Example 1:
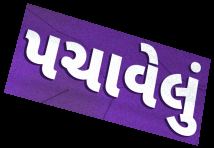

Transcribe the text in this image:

પચાવેલું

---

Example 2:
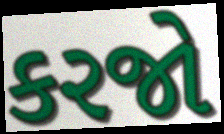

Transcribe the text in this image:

કરજો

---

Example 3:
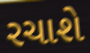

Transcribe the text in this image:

રચાશે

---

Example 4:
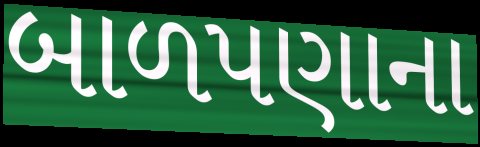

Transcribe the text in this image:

બાળપણાના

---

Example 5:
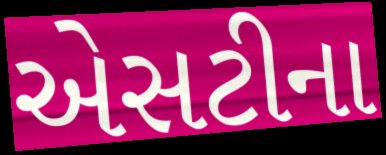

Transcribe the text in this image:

એસટીના